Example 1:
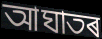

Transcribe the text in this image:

আঘাতৰ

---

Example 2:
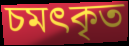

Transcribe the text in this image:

চমৎকৃত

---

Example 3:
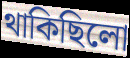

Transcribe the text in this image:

থাকিছিলো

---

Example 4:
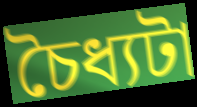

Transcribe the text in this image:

চৈধ্যটা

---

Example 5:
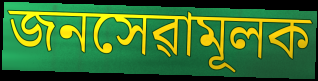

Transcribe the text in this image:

জনসেৱামূলক